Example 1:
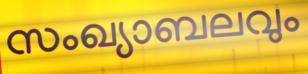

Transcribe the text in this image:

സംഖ്യാബലവും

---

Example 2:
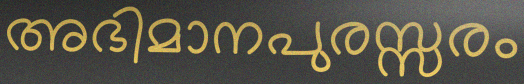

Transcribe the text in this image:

അഭിമാനപുരസ്സരം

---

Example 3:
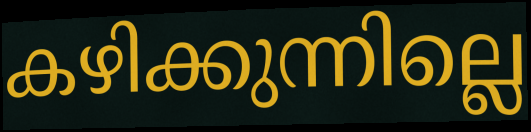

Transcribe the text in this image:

കഴിക്കുന്നില്ലെ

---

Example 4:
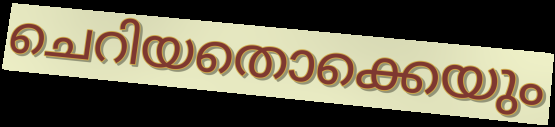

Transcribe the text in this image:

ചെറിയതൊക്കെയും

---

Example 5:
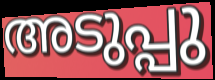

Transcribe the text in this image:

അടുപ്പു